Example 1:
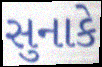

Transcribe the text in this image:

સુનાકે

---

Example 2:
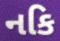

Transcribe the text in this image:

નકિ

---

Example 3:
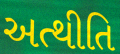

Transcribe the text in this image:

અત્થીતિ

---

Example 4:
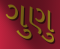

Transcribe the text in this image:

ગુણુ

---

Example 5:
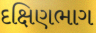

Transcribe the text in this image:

દક્ષિણભાગ